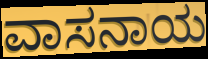
ವಾಸನಾಯ